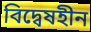
বিদ্বেষহীন